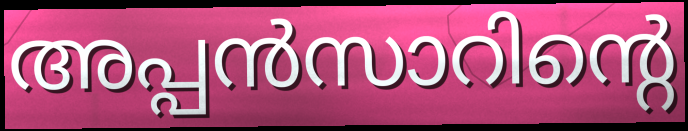
അപ്പൻസാറിന്റെ